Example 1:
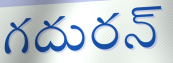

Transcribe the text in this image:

గదురన్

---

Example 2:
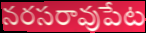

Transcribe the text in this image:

నరసరావుపేట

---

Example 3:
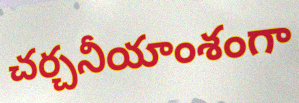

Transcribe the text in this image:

చర్చనీయాంశంగా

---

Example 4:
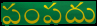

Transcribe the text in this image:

పంపదు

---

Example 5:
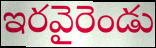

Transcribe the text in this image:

ఇరవైరెండు